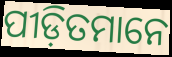
ପୀଡ଼ିତମାନେ